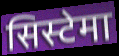
सिस्टेमा